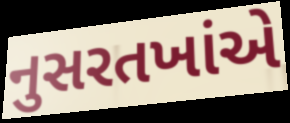
નુસરતખાંએ